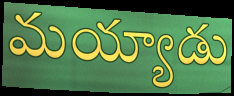
మయ్యాడు